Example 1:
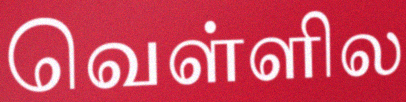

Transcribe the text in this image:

வெள்ளில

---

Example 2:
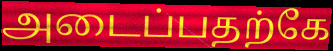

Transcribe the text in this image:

அடைப்பதற்கே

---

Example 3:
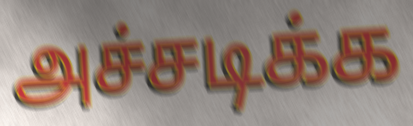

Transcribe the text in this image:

அச்சடிக்க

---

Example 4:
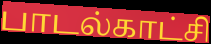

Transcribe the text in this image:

பாடல்காட்சி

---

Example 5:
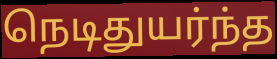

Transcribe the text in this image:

நெடிதுயர்ந்த